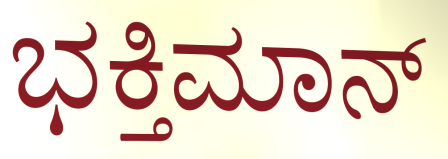
ಭಕ್ತಿಮಾನ್